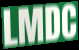
LMDC